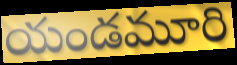
యండమూరి